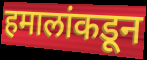
हमालांकडून